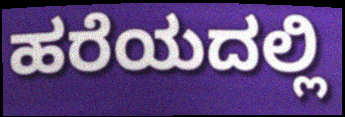
ಹರೆಯದಲ್ಲಿ